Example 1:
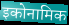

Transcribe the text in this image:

इकोनामिक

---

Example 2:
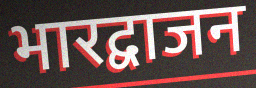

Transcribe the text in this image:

भारद्वाजन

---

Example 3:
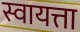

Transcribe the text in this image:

स्वायत्ता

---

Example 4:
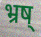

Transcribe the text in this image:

भ्रष्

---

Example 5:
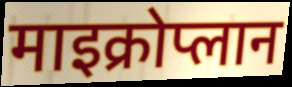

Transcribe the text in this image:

माइक्रोप्लान